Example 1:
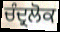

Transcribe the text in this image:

ਚੰਦ੍ਰਲੋਕ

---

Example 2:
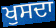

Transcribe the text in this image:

ਖੁਸਦਾ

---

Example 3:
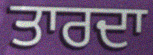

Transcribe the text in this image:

ਤਾਰਦਾ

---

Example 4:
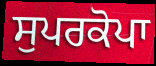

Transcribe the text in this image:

ਸੁਪਰਕੋਪਾ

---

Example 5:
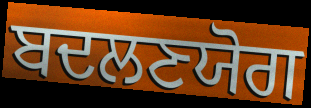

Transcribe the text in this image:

ਬਦਲਣਯੋਗ